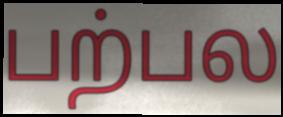
பற்பல